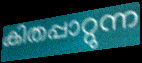
കിതപ്പാറ്റുന്ന